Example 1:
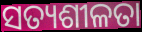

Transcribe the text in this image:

ସତ୍ୟଶୀଳତା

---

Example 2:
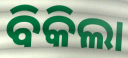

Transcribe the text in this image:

ବିକିଲା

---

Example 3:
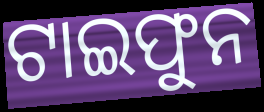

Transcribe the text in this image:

ଟାଇଫୁନ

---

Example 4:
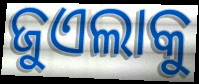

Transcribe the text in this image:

ଜୁଏଲାକୁ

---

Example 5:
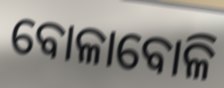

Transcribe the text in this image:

ବୋଳାବୋଳି